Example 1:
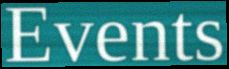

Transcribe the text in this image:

Events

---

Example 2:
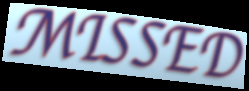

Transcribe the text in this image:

MISSED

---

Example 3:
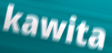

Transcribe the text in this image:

kawita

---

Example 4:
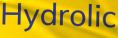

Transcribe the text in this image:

Hydrolic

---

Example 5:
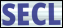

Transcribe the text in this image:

SECL